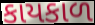
કાયકાળ